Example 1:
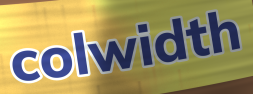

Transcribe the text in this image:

colwidth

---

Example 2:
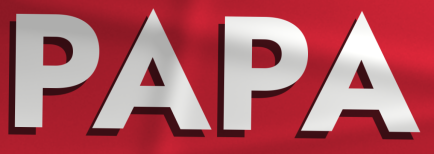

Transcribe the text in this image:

PAPA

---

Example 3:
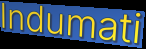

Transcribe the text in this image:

Indumati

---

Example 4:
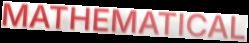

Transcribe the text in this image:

MATHEMATICAL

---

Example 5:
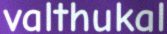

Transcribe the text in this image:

valthukal